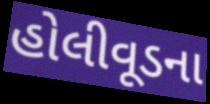
હોલીવૂડના